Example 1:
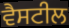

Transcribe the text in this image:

ਵੈਸਟੀਲ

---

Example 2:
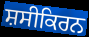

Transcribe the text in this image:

ਸ਼ਸੀਕਿਰਨ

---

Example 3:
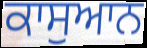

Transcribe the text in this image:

ਕਾਸੁਆਨ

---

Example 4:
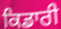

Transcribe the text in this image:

ਕਿਡਾਰੀ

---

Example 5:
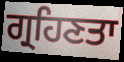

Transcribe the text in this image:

ਗ੍ਰਹਿਣਤਾ